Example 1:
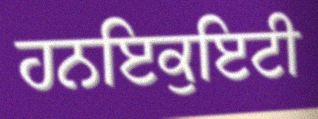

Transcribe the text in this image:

ਹਨਇਕੁਇਟੀ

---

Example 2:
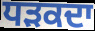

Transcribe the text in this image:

ਧੜਕਦਾ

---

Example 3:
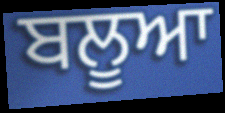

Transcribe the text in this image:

ਬਲੂਆ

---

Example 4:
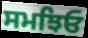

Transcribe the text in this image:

ਸਮਝਿਓ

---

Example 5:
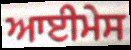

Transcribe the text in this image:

ਆਈਮੇਸ